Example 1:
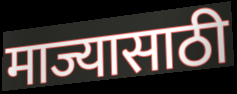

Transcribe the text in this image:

माज्यासाठी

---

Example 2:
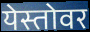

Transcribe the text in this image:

येस्तोवर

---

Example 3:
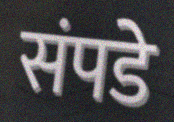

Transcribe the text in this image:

संपडे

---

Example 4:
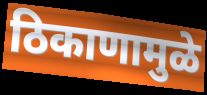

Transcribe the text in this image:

ठिकाणामुळे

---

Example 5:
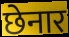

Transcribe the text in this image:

छेनार